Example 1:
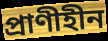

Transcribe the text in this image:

প্রাণীহীন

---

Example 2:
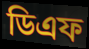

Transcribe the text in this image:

ডিএফ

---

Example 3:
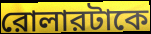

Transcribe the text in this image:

রোলারটাকে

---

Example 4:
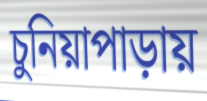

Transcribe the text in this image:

চুনিয়াপাড়ায়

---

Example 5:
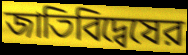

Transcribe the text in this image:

জাতিবিদ্বেষের